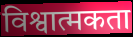
विश्वात्मकता